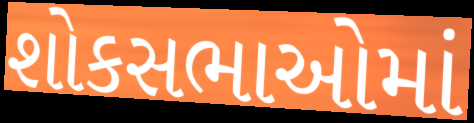
શોકસભાઓમાં